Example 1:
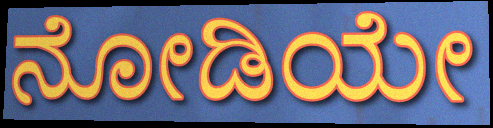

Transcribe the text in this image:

ನೋಡಿಯೇ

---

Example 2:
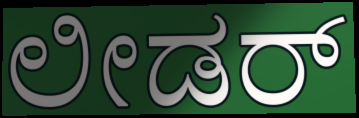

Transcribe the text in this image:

ಲೀಡರ್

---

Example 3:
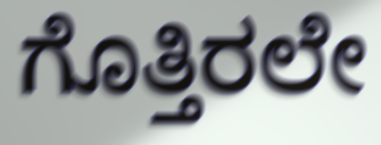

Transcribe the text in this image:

ಗೊತ್ತಿರಲೇ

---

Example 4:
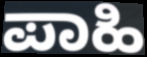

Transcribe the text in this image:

ಪಾಹಿ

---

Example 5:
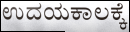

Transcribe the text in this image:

ಉದಯಕಾಲಕ್ಕೆ